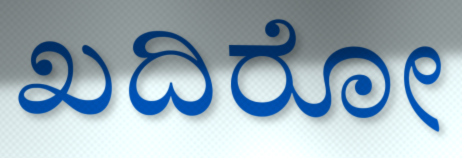
ಖದಿರೋ